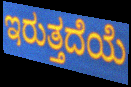
ಇರುತ್ತದೆಯೆ